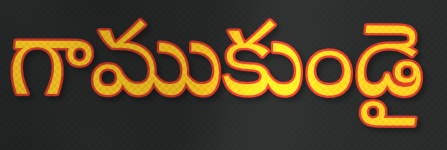
గాముకుండై